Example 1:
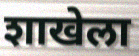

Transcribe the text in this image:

शाखेला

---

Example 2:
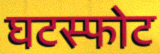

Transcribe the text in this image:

घटस्फोट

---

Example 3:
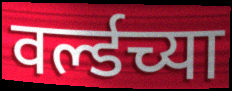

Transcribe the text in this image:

वर्ल्डच्या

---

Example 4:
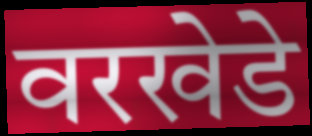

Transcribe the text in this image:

वरखेडे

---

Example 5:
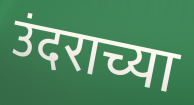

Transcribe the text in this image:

उंदराच्या